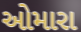
ઓમારા